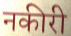
नकीरी